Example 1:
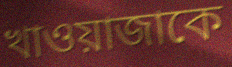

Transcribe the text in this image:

খাওয়াজাকে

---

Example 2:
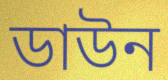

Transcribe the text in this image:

ডাউন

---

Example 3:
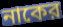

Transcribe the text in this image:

নাকের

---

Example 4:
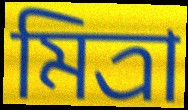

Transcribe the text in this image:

মিত্রা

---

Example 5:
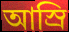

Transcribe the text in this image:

আস্রি